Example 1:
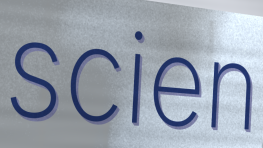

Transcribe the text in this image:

scien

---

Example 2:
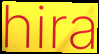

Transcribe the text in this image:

hira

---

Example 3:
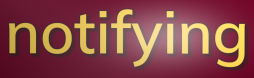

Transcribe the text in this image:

notifying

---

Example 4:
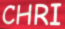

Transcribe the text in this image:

CHRI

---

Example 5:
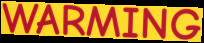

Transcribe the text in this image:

WARMING